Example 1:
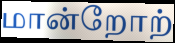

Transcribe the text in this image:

மான்றோற்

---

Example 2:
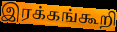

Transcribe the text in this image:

இரக்கங்கூறி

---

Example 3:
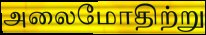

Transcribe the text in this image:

அலைமோதிற்று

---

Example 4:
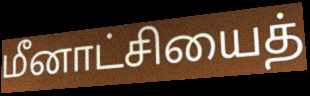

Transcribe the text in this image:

மீனாட்சியைத்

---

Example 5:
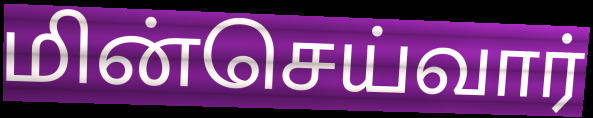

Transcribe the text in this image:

மின்செய்வார்